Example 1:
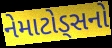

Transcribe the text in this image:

નેમાટોડ્સનો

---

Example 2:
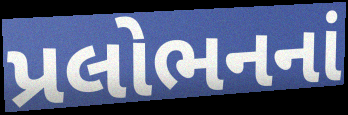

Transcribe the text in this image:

પ્રલોભનનાં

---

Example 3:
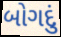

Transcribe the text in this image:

બોગદું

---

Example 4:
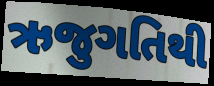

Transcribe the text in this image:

ઋજુગતિથી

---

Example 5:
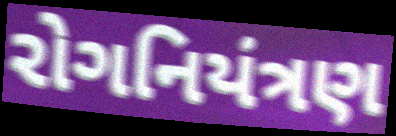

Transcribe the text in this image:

રોગનિયંત્રણ